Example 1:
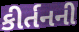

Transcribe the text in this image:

કીર્તનની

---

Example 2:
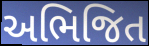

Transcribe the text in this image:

અભિજિત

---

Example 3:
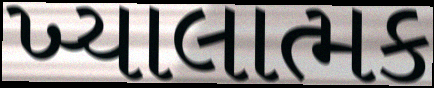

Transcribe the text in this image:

ખ્યાલાત્મક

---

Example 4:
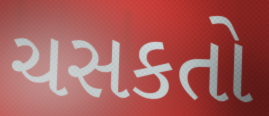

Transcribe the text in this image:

ચસકતો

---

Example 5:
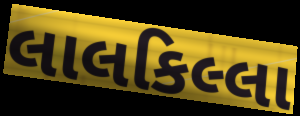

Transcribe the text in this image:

લાલકિલ્લા